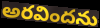
అరవిందను